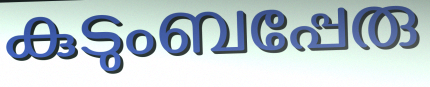
കുടുംബപ്പേരു